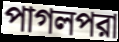
পাগলপরা